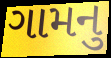
ગામનુ